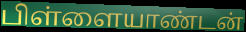
பிள்ளையாண்டன்